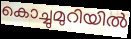
കൊച്ചുമുറിയിൽ